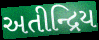
અતીન્દ્રિય